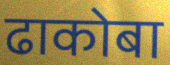
ढाकोबा